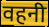
वहनी